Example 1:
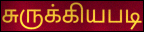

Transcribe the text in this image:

சுருக்கியபடி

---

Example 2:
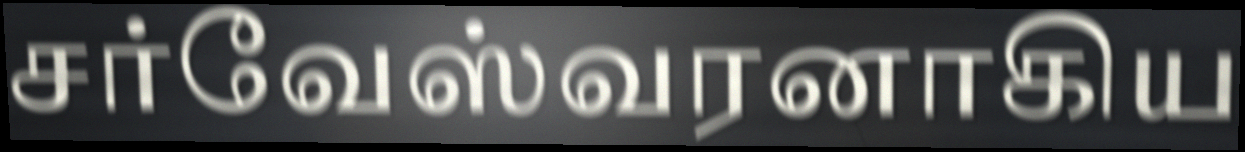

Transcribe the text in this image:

சர்வேஸ்வரனாகிய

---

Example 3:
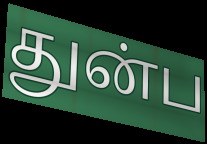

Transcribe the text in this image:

துன்ப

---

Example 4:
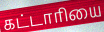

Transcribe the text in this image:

கட்டாரியை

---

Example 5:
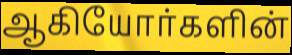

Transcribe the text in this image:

ஆகியோர்களின்